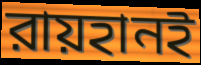
রায়হানই